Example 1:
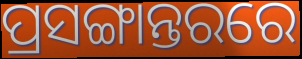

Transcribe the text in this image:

ପ୍ରସଙ୍ଗାନ୍ତରରେ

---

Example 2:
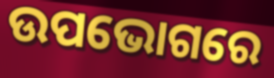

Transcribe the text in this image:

ଉପଭୋଗରେ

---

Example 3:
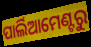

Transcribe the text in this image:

ପାର୍ଲିଆମେଣ୍ଟରୁ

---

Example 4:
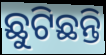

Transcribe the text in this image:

ଛୁଟିଛନ୍ତି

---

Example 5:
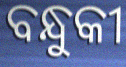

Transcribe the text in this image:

ବନ୍ଧୁକୀ